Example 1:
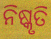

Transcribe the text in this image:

ନିଷ୍କୃତି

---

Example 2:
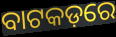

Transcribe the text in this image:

ବାଟକଡ଼ରେ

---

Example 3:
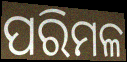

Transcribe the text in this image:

ପରିମଳ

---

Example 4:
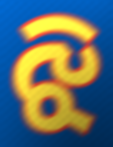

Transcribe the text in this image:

ଝି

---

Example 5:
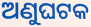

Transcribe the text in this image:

ଅଣୁଘଟକ